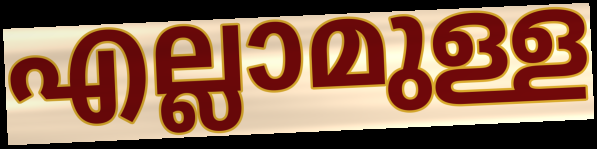
എല്ലാമുള്ള